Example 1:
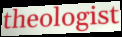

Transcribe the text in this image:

theologist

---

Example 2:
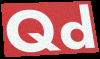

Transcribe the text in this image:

Qd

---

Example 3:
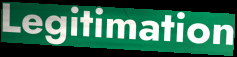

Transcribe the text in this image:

Legitimation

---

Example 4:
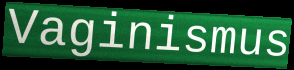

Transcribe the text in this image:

Vaginismus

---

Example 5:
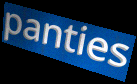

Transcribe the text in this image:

panties